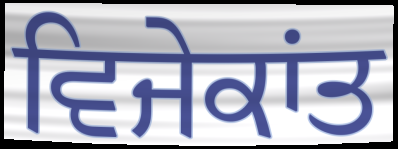
ਵਿਜੇਕਾਂਤ